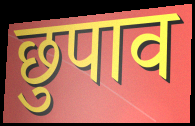
छुपाव